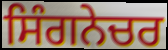
ਸਿੰਗਨੇਚਰ